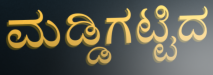
ಮಡ್ಡಿಗಟ್ಟಿದ